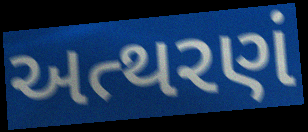
અત્થરણં